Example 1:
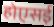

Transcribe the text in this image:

होएसई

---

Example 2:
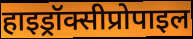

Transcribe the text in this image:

हाइड्रॉक्सीप्रोपाइल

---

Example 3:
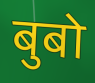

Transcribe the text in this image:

बुबो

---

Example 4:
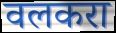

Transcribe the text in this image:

वलकरा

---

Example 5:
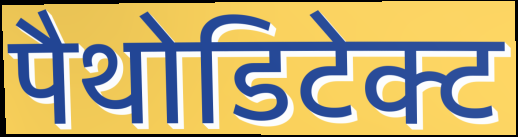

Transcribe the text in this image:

पैथोडिटेक्ट